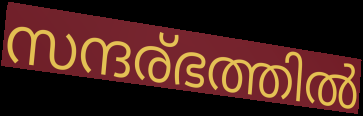
സന്ദര്ഭത്തിൽ